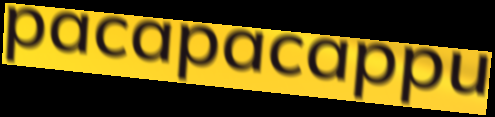
pacapacappu